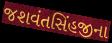
જશવંતસિંહજીના